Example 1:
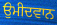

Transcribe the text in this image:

ਉਮੀਦਵਾਨ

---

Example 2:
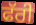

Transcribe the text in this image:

ਫੱਰੀ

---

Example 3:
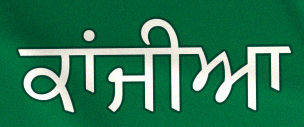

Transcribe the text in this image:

ਕਾਂਜੀਆ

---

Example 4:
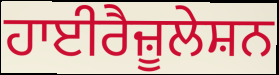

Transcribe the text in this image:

ਹਾਈਰੈਜ਼ੂਲੇਸ਼ਨ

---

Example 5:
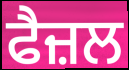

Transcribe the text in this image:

ਫੈਜ਼ਲ